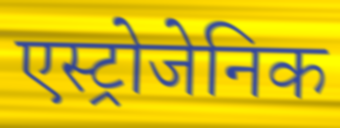
एस्ट्रोजेनिक